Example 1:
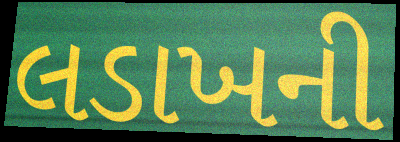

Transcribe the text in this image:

લડાખની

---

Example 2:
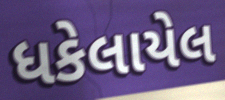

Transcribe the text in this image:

ધકેલાયેલ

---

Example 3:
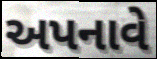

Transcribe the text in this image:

અપનાવે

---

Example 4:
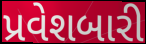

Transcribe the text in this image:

પ્રવેશબારી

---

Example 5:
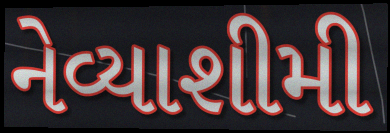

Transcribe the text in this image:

નેવ્યાશીમી